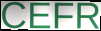
CEFR